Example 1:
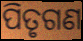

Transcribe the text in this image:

ପିତୃଗଣ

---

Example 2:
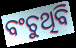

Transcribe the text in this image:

ବଂଚୁଥିବି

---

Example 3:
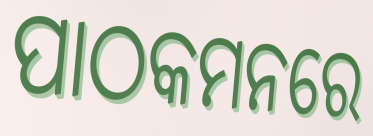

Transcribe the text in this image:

ପାଠକମନରେ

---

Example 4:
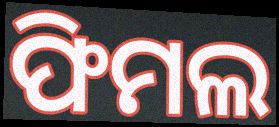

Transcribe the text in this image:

ଫିମଲ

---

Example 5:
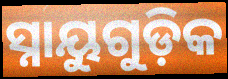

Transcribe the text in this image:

ସ୍ନାୟୁଗୁଡ଼ିକ